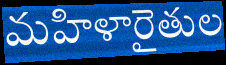
మహిళారైతుల